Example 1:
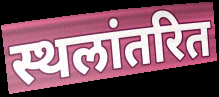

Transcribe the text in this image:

स्थलांतरित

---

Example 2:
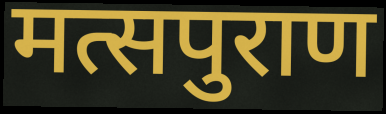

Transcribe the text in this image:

मत्सपुराण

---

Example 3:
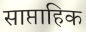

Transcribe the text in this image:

साप्ताहिक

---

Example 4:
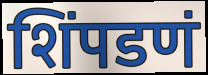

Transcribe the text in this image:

शिंपडणं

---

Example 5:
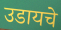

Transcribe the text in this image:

उडायचे